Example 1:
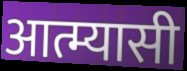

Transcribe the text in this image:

आत्म्यासी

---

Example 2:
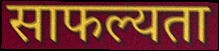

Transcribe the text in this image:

साफल्यता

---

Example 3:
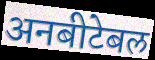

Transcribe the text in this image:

अनबीटेबल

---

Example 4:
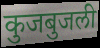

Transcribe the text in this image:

कुजबुजली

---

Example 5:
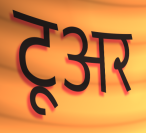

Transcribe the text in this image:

टूअर